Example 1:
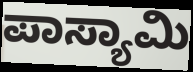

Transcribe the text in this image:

ಪಾಸ್ಯಾಮಿ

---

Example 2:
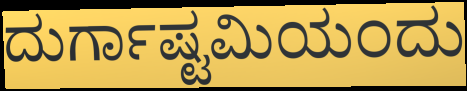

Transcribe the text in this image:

ದುರ್ಗಾಷ್ಟಮಿಯಂದು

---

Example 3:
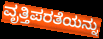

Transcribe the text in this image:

ವೃತ್ತಿಪರತೆಯನ್ನು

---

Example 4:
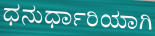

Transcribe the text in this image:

ಧನುರ್ಧಾರಿಯಾಗಿ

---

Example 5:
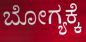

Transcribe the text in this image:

ಬೋಗ್ಯಕ್ಕೆ